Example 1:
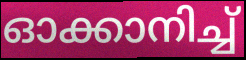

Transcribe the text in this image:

ഓക്കാനിച്ച്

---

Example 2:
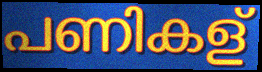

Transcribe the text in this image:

പണികള്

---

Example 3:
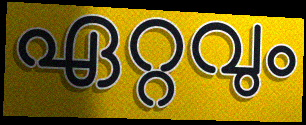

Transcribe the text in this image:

ഏറ്റവും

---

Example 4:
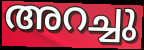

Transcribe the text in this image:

അറച്ചു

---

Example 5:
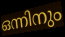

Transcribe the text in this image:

ഒന്നിനും